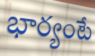
భార్యంటే